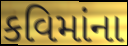
કવિમાંના